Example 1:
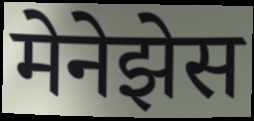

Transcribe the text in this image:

मेनेझेस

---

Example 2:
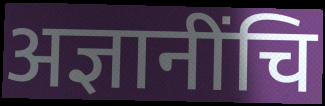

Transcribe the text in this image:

अज्ञानींचि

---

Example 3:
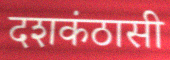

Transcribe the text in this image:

दशकंठासी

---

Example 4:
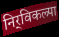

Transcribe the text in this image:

निर्विकल्पा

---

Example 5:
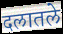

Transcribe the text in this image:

दलातले